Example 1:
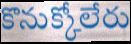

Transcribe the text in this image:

కొనుక్కోలేరు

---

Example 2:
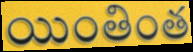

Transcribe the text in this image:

యింతింత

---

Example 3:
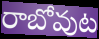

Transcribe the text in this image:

రాబోవుట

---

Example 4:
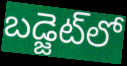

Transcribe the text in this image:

బడ్జెట్‌లో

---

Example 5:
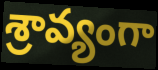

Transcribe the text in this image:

శ్రావ్యంగా